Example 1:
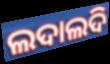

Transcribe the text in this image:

ଲଦାଲଦି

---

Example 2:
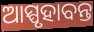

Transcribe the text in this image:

ଆସ୍ପୃହାବନ୍ତ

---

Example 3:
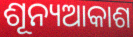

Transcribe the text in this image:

ଶୂନ୍ୟଆକାଶ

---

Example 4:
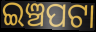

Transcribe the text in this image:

ଇଞ୍ଚପଟା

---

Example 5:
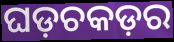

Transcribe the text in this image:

ଘଡ଼ଚକଡ଼ର